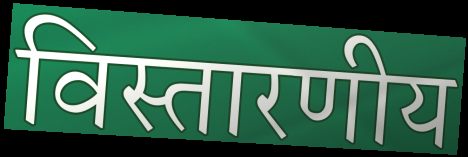
विस्तारणीय